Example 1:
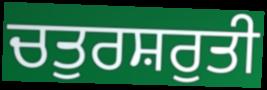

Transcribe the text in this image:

ਚਤੁਰਸ਼ਰੁਤੀ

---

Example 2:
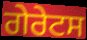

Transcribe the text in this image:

ਗੇਰੇਟਸ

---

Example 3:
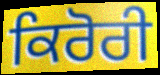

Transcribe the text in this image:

ਕਿਰੋਰੀ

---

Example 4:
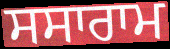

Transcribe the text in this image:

ਸਸਾਰਾਮ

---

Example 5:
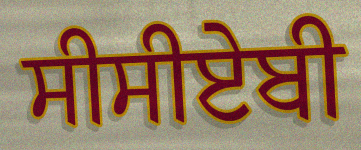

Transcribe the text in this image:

ਸੀਸੀਏਬੀ